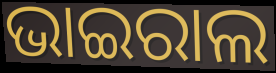
ଭାଇରାଲ